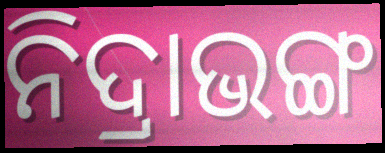
ନିଦ୍ରାଭଙ୍ଗ